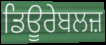
ਡਿਊਰੇਬਲਜ਼